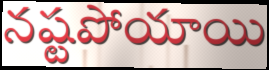
నష్టపోయాయి